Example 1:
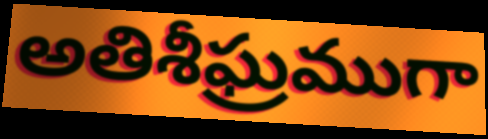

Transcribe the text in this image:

అతిశీఘ్రముగా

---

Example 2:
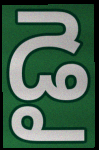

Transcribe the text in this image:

డై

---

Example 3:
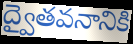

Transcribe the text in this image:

ద్వైతవనానికి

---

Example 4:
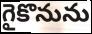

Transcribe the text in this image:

గైకొనును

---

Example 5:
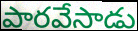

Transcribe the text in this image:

పారవేసాడు